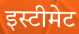
इस्टीमेट